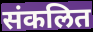
संकलित